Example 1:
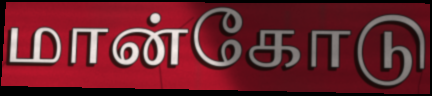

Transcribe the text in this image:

மான்கோடு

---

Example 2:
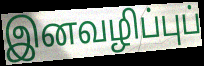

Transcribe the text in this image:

இனவழிப்புப்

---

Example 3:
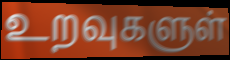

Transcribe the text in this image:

உறவுகளுள்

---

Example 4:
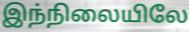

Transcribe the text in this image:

இந்நிலையிலே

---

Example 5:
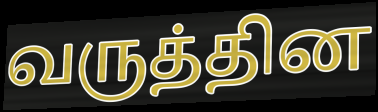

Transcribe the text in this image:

வருத்தின